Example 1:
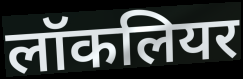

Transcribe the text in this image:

लॉकलियर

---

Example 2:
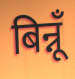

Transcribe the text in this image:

बिन्नूँ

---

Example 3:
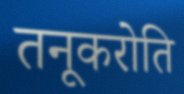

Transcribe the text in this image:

तनूकरोति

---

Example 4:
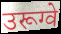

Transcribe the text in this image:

उरूग्वे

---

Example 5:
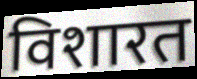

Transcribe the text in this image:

विशारत